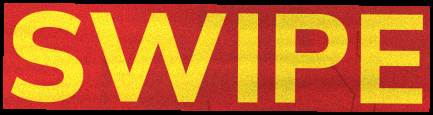
SWIPE